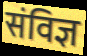
संविज्ञ